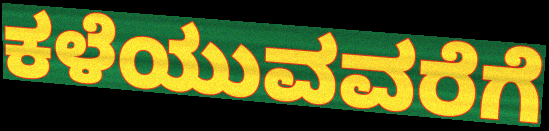
ಕಳೆಯುವವರೆಗೆ